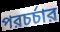
পরচর্চার